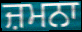
ਜ਼ਮਨਾ